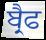
ਬ੍ਰੈਫ